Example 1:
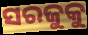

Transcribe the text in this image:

ସରଜୁକୁ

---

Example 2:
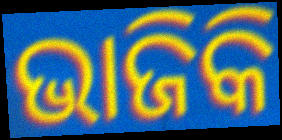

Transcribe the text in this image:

ଭାଜିକି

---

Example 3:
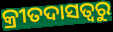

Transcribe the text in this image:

କ୍ରୀତଦାସତ୍ୱରୁ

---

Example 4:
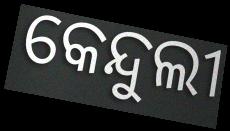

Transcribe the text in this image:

କେନ୍ଦୁଲୀ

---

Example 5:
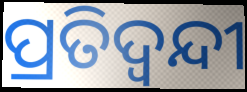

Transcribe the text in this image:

ପ୍ରତିଦ୍ଵନ୍ଦୀ